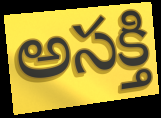
అసక్తి